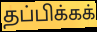
தப்பிக்கக்